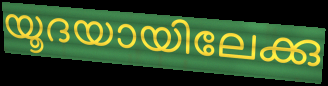
യൂദയായിലേക്കു